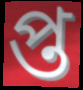
প্ত